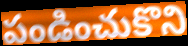
పండించుకొని